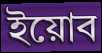
ইয়োব